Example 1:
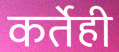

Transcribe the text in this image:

कर्तेही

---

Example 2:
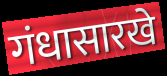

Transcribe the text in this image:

गंधासारखे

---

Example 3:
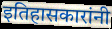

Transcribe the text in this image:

इतिहासकारांनी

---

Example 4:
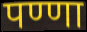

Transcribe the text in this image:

पण्णा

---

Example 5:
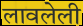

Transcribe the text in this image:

लावलेली